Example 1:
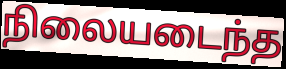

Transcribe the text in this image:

நிலையடைந்த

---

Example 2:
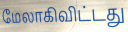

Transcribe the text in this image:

மேலாகிவிட்டது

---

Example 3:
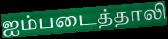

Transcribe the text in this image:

ஐம்படைத்தாலி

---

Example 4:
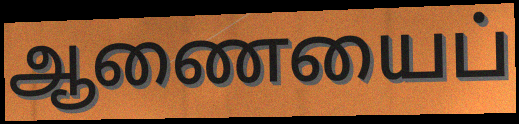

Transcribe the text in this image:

ஆணையைப்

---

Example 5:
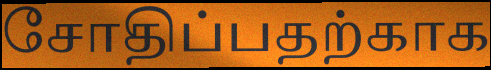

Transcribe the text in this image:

சோதிப்பதற்காக